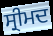
ਸ੍ਰੀਮਦ